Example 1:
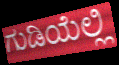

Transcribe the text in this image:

ಗುಡಿಯೆಲ್ಲಿ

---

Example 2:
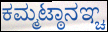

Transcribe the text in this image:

ಕಮ್ಮಟ್ಠಾನಞ್ಚ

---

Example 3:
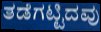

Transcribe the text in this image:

ತಡೆಗಟ್ಟಿದವು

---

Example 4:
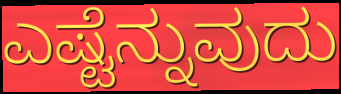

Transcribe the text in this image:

ಎಷ್ಟೆನ್ನುವುದು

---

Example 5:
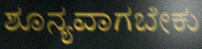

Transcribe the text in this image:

ಶೂನ್ಯವಾಗಬೇಕು